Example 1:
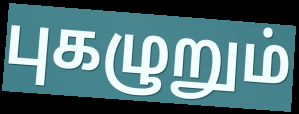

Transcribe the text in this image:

புகழுறும்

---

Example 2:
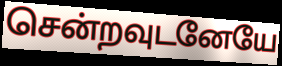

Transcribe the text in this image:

சென்றவுடனேயே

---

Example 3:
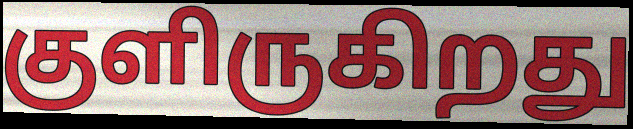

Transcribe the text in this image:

குளிருகிறது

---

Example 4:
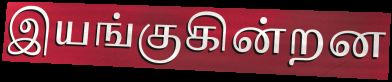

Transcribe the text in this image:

இயங்குகின்றன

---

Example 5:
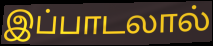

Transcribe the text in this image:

இப்பாடலால்